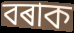
বৰাক